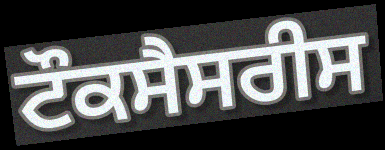
ਟੌਕਸੈਸਰੀਸ